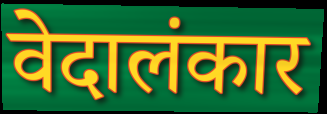
वेदालंकार